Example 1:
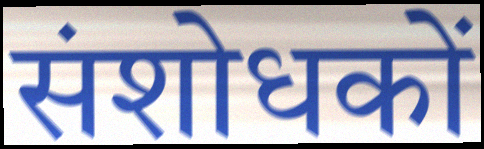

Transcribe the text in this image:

संशोधकों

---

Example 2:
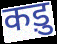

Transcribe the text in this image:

कड़ु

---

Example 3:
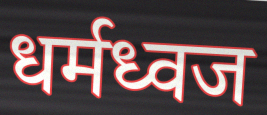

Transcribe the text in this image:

धर्मध्वज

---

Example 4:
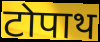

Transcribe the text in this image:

टोपाथ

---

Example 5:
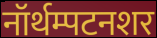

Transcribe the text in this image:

नॉर्थम्पटनशर